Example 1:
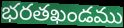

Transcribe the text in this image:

భరతఖండము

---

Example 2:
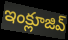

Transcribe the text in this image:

ఇంక్లూజివ్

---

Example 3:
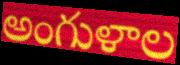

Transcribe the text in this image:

అంగుళాల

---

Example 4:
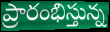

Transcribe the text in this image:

ప్రారంభిస్తున్న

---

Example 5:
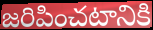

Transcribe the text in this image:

జరిపించటానికి